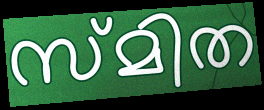
സ്മിത